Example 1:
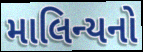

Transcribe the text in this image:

માલિન્યનો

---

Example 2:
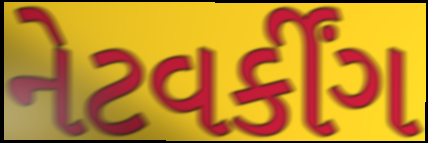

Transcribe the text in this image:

નેટવર્કીંગ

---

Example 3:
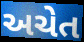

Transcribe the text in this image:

અચેત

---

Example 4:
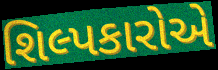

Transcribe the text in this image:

શિલ્પકારોએ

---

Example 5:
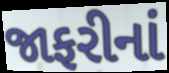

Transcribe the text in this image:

જાફરીનાં